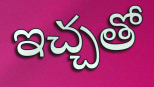
ఇచ్చతో